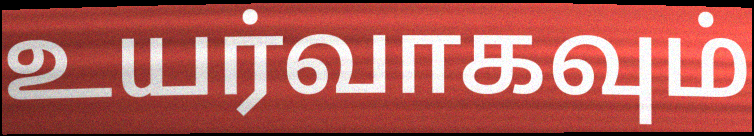
உயர்வாகவும்